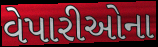
વેપારીઓના